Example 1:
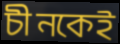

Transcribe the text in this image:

চীনকেই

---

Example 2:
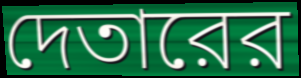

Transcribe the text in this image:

দেতারের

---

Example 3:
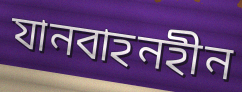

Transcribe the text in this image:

যানবাহনহীন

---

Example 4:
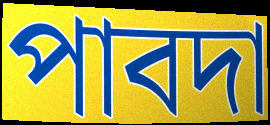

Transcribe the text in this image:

পাবদা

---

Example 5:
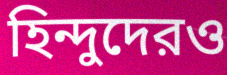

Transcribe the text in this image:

হিন্দুদেরও